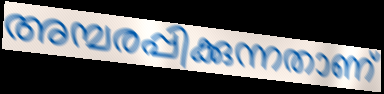
അമ്പരപ്പിക്കുന്നതാണ്